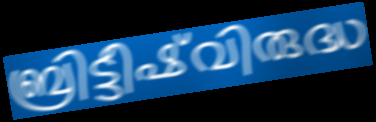
ബ്രിട്ടീഷ്‌വിരുദ്ധ